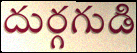
దుర్గగుడి